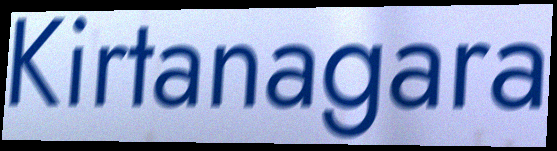
Kirtanagara